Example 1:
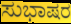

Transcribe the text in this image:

ಸುಭಾಷರ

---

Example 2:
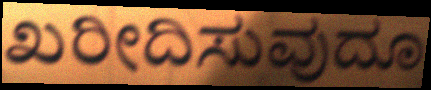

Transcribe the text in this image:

ಖರೀದಿಸುವುದೂ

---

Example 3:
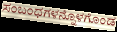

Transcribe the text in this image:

ಸಂಬಂಧಗಳನ್ನೊಳಗೊಂಡ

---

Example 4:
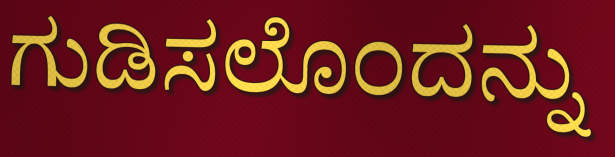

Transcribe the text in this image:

ಗುಡಿಸಲೊಂದನ್ನು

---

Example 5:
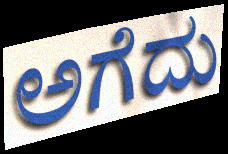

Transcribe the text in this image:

ಅಗೆದು